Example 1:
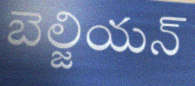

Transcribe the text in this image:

బెల్జియన్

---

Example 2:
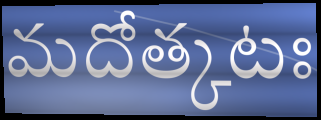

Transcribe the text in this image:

మదోత్కటః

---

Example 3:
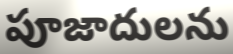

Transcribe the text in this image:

పూజాదులను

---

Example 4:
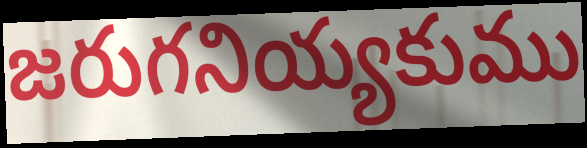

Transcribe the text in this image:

జరుగనియ్యకుము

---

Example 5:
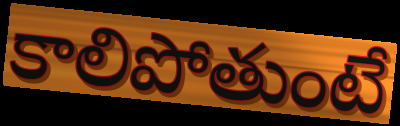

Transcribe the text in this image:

కాలిపోతుంటే